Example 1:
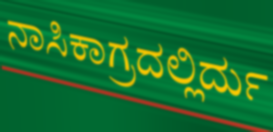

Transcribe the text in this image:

ನಾಸಿಕಾಗ್ರದಲ್ಲಿರ್ದು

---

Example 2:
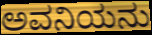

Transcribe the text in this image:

ಅವನಿಯನು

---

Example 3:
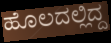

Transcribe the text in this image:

ಹೊಲದಲ್ಲಿದ್ದ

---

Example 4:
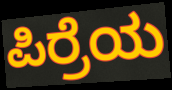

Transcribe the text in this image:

ಪಿರ್ರೆಯ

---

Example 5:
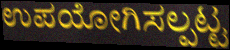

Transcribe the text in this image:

ಉಪಯೋಗಿಸಲ್ಪಟ್ಟ